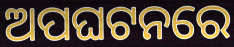
ଅପଘଟନରେ